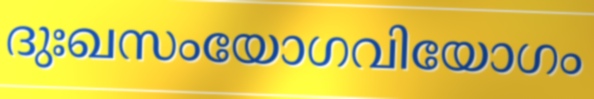
ദുഃഖസംയോഗവിയോഗം